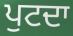
ਪੁਟਦਾ